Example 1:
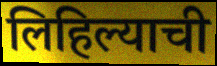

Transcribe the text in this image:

लिहिल्याची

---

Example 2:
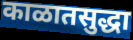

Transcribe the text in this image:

काळातसुद्धा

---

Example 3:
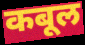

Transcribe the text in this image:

कबूल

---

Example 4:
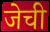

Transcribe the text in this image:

जेची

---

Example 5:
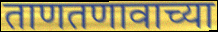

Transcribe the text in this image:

ताणतणावाच्या